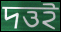
দত্তই